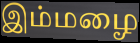
இம்மழை